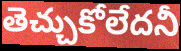
తెచ్చుకోలేదనీ